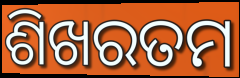
ଶିଖରତମ